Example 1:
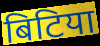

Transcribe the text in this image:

बिटिया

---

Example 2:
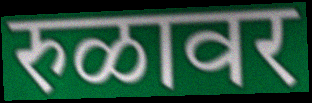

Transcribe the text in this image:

रुळावर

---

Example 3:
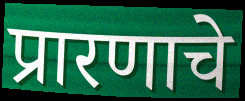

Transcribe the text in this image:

प्रारणाचे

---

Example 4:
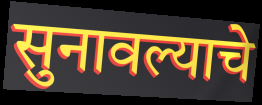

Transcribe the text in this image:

सुनावल्याचे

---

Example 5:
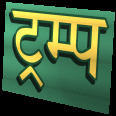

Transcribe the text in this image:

ट्रम्‍प